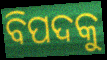
ବିପଦକୁ